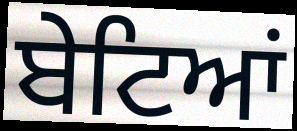
ਬੇਟਿਆਂ